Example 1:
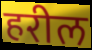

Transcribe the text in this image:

हरील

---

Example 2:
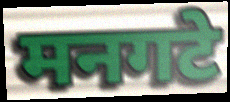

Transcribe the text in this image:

मनगटे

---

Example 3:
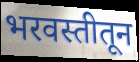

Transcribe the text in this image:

भरवस्तीतून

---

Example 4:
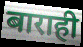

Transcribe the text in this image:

बाराही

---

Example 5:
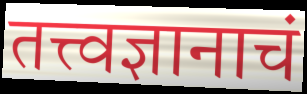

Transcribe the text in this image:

तत्त्वज्ञानाचं